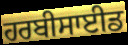
ਹਰਬੀਸਾਈਡ